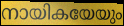
നായികയേയും